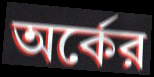
অর্কের